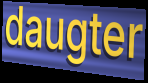
daugter